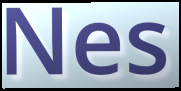
Nes